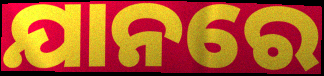
ଯାନରେ